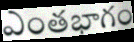
ఎంతభాగం